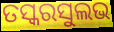
ତସ୍କରସୁଲଭ